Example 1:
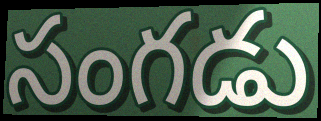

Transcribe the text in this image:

సంగడు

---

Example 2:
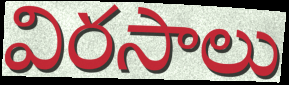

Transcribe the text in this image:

విరసాలు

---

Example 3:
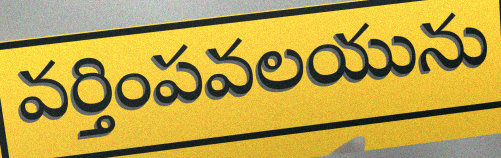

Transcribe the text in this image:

వర్తింపవలయును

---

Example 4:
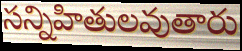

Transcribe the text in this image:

సన్నిహితులవుతారు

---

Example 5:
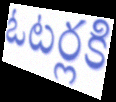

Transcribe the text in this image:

ఓటర్లకి